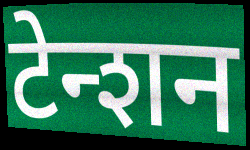
टेन्शन